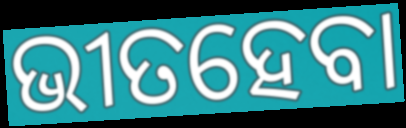
ଭୀତହେବା